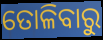
ତୋଳିବାରୁ